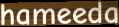
hameeda